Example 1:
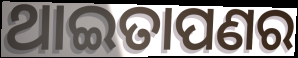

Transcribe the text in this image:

ଥାଇତାପଣର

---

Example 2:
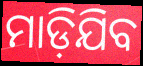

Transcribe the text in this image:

ମାଡ଼ିଯିବ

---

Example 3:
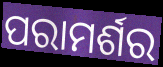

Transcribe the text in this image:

ପରାମର୍ଶର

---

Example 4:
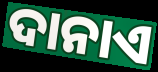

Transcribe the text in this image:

ଦାନାଏ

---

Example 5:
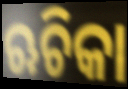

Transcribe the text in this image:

ଋଚିକା